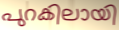
പുറകിലായി